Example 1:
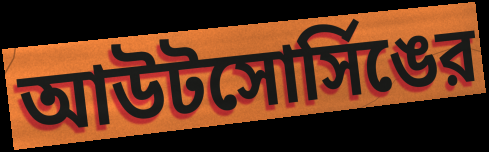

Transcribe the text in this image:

আউটসোর্সিঙের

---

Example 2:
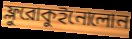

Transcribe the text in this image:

ফ্লুরোকুইনোলোন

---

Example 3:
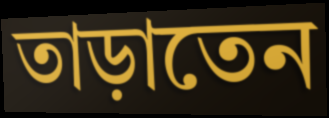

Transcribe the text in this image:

তাড়াতেন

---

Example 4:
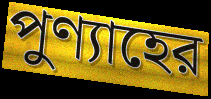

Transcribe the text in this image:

পুণ্যাহের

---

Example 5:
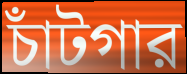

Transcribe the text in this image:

চাঁটগার